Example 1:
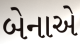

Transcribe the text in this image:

બેનાએ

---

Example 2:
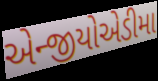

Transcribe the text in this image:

એન્જીયોએડીમા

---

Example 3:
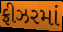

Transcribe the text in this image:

ફ્રીઝરમાં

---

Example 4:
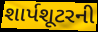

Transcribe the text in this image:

શાર્પશૂટરની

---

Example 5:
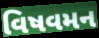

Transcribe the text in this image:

વિષવમન